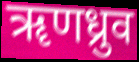
ॠणध्रुव